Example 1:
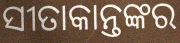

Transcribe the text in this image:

ସୀତାକାନ୍ତଙ୍କର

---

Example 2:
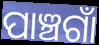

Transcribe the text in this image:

ପାଞ୍ଚଗାଁ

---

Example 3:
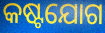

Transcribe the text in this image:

କଷ୍ଟଯୋଗ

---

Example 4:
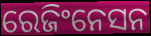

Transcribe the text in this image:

ରେଜିଂନେସନ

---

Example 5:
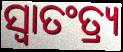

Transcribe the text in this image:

ସ୍ଵାତଂତ୍ର୍ୟ